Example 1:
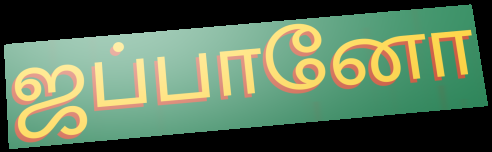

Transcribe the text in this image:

ஜப்பானோ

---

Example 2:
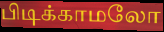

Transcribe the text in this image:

பிடிக்காமலோ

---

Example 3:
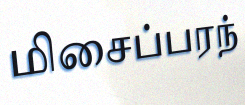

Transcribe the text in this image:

மிசைப்பரந்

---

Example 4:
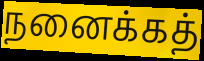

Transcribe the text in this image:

நனைக்கத்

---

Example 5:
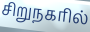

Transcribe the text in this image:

சிறுநகரில்